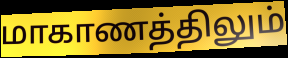
மாகாணத்திலும்